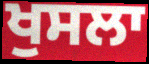
ਖੁਸਲਾ